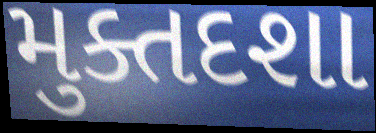
મુક્તદશા